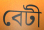
বেটী